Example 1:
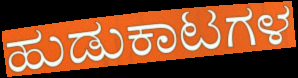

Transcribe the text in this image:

ಹುಡುಕಾಟಗಳ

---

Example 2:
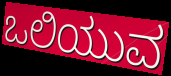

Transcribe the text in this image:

ಒಲಿಯುವ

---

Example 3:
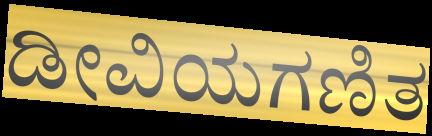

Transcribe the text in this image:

ಡೀವಿಯಗಣಿತ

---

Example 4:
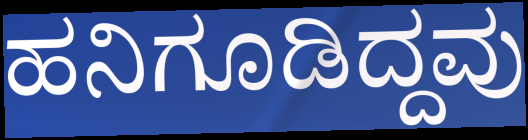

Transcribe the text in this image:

ಹನಿಗೂಡಿದ್ದವು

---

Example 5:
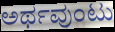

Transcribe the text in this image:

ಅರ್ಥವುಂಟು